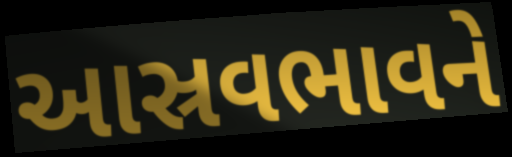
આસ્રવભાવને